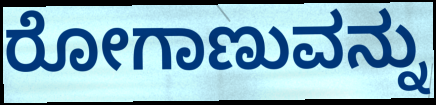
ರೋಗಾಣುವನ್ನು